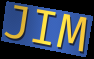
JIM